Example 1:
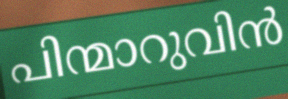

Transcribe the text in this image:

പിന്മാറുവിൻ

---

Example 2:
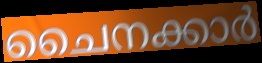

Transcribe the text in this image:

ചൈനക്കാർ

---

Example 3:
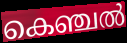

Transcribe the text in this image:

കെഞ്ചൽ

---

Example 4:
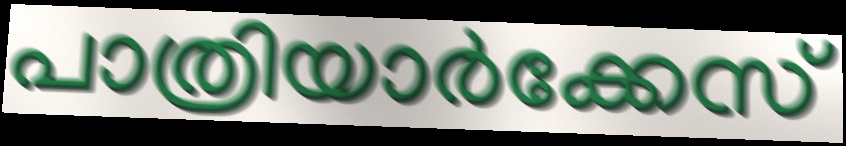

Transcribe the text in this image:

പാത്രിയാർക്കേസ്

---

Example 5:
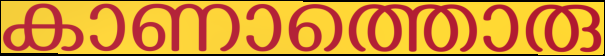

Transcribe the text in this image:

കാണാത്തൊരു